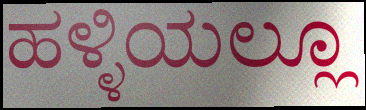
ಹಳ್ಳಿಯಲ್ಲೂ